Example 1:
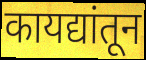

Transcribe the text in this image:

कायद्यांतून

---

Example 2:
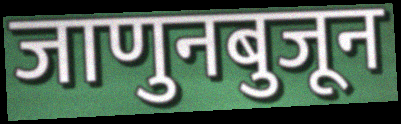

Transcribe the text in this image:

जाणुनबुजून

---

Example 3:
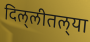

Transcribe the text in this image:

दिल्लीतल्या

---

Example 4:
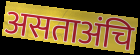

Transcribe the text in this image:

असताअंचि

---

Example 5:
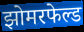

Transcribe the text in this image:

झोमरफेल्ड